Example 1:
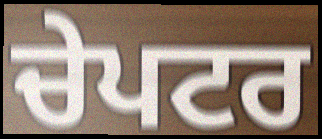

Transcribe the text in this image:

ਚੇਪਟਰ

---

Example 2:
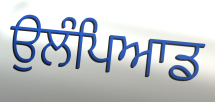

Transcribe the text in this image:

ਉਲੰਪਿਆਡ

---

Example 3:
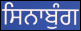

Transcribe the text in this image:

ਸਿਨਾਬੁੰਗ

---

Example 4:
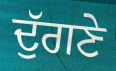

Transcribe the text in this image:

ਦੁੱਗਣੇ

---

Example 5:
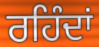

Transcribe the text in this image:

ਰਹਿੰਦਾਂ